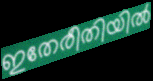
ഇതേരീതിയിൽ